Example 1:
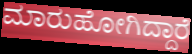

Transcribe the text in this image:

ಮಾರುಹೋಗಿದ್ದಾರೆ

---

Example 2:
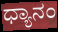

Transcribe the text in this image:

ಧ್ಯಾನಂ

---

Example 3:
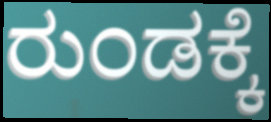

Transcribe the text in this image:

ರುಂಡಕ್ಕೆ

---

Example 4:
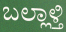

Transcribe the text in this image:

ಬಲ್ಲಾಳ್ತಿ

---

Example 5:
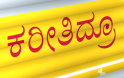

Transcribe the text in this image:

ಕರೀತಿದ್ರೂ